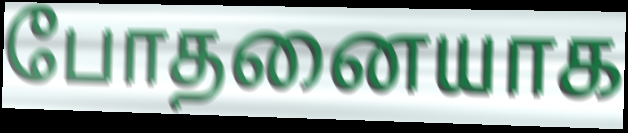
போதனையாக